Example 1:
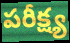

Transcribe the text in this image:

పరీక్ష్య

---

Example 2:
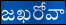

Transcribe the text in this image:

జఖరోవా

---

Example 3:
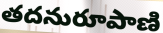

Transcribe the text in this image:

తదనురూపాణి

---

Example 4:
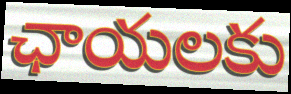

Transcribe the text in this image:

ఛాయలకు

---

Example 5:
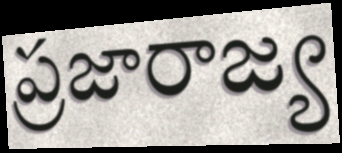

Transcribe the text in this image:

ప్రజారాజ్య